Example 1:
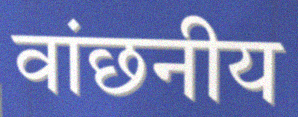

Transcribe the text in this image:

वांछनीय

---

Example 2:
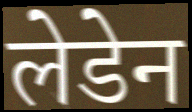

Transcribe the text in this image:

लेडेन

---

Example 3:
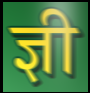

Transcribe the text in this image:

ज्ञी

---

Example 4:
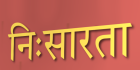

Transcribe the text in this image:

निःसारता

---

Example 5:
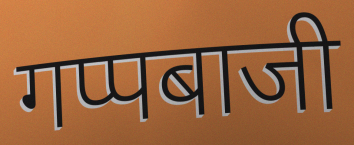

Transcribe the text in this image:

गप्पबाजी